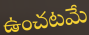
ఉంచటమే